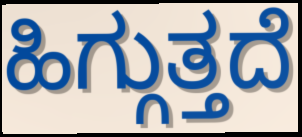
ಹಿಗ್ಗುತ್ತದೆ